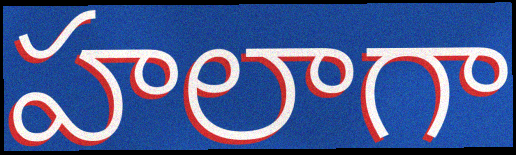
హలాగా